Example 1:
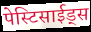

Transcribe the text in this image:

पेस्टिसाईड्स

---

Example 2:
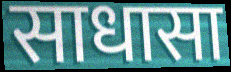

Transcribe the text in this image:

साधासा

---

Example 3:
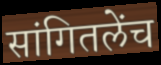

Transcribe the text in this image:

सांगितलेंच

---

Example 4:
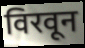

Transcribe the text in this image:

विरवून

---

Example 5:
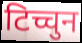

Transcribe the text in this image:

टिच्चुन